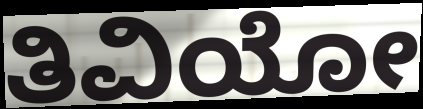
ತಿವಿಯೋ